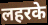
लहरके